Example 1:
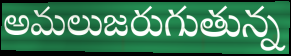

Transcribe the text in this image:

అమలుజరుగుతున్న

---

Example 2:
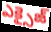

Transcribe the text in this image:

ఎక్సైజ్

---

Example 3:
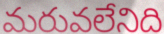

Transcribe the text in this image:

మరువలేనిది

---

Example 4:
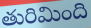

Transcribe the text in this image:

తురిమింది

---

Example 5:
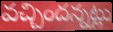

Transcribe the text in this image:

వచ్చిందన్నట్లు